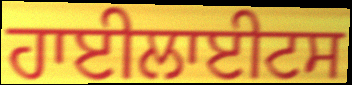
ਹਾਈਲਾਈਟਸ